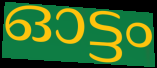
ഓട്ടം